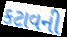
કટાવની